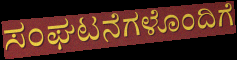
ಸಂಘಟನೆಗಳೊಂದಿಗೆ